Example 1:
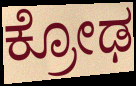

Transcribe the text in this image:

ಕ್ರೋಢ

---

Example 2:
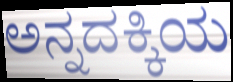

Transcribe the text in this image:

ಅನ್ನದಕ್ಕಿಯ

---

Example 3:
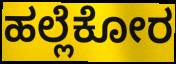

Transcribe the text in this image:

ಹಲ್ಲೆಕೋರ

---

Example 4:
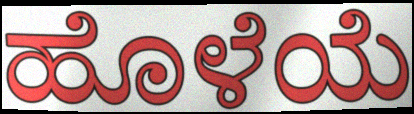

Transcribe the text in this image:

ಹೊಳೆಯೆ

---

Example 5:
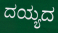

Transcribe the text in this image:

ದಯ್ಯದ